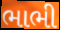
ભાભી